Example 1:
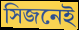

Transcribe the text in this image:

সিজনেই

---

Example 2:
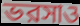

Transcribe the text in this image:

ভরসাও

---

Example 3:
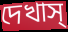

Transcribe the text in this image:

দেখাস্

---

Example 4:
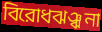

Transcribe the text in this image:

বিরোধঝঞ্ঝনা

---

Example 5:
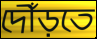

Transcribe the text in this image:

দৌঁড়তে